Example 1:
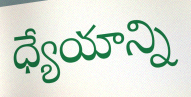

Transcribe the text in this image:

ధ్యేయాన్ని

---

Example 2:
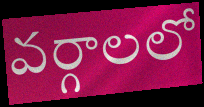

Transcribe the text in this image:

వర్గాలలో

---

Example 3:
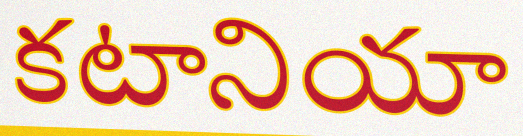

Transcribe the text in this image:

కటానియా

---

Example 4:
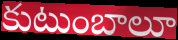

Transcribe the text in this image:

కుటుంబాలూ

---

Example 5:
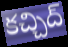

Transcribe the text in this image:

కచ్చిద్